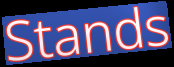
Stands